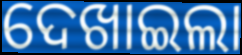
ଦେଖାଇଲା